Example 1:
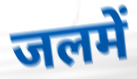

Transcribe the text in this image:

जलमें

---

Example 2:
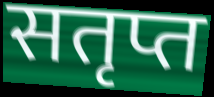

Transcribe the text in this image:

सतृप्त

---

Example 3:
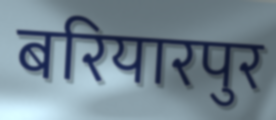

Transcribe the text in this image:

बरियारपुर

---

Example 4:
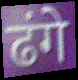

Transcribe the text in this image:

ढंगे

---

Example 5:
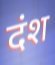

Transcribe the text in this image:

दंश